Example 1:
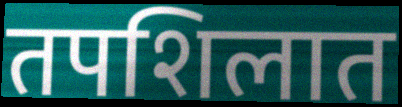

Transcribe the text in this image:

तपशिलात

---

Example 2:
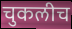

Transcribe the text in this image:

चुकलीच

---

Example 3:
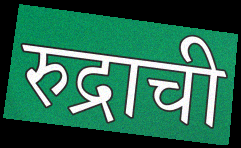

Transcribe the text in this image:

रुद्राची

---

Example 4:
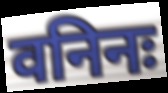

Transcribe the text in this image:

वनिनः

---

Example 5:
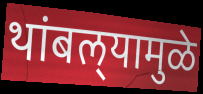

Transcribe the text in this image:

थांबल्यामुळे